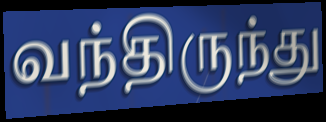
வந்திருந்து